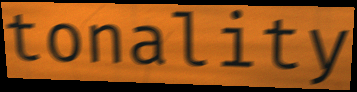
tonality